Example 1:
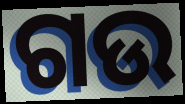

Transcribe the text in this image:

ଗଉ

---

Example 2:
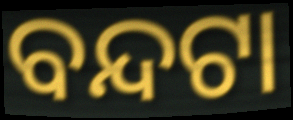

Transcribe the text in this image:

ବନ୍ଦଟା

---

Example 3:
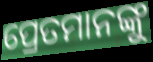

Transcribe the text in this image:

ପ୍ରେତମାନଙ୍କୁ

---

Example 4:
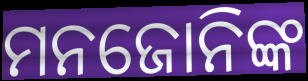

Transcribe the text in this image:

ମନଜୋନିଙ୍କ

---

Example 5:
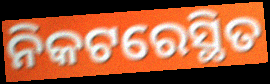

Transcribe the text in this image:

ନିକଟରେସ୍ଥିତ